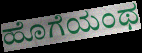
ಹೊಗೆಯಂಥ